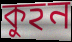
কুহন